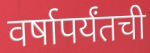
वर्षापर्यंतची